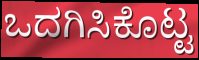
ಒದಗಿಸಿಕೊಟ್ಟ